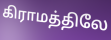
கிராமத்திலே